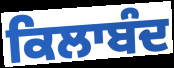
ਕਿਲਾਬੰਦ